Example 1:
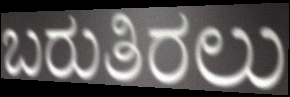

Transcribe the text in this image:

ಬರುತಿರಲು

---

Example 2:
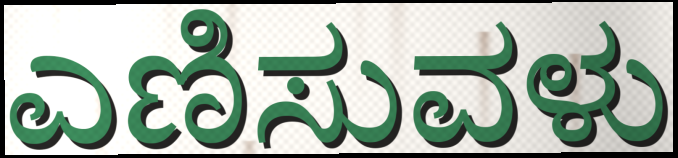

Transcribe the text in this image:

ಎಣಿಸುವಳು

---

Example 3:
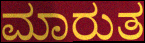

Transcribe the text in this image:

ಮಾರುತ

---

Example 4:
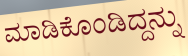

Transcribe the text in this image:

ಮಾಡಿಕೊಂಡಿದ್ದನ್ನು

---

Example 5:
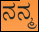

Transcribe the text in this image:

ನನ್ಮ